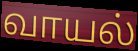
வாயல்